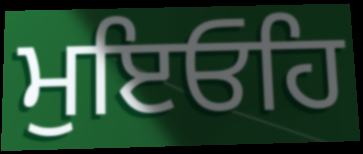
ਮੁਇਓਹਿ